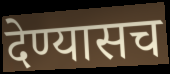
देण्यासच